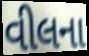
વીલના